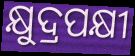
କ୍ଷୁଦ୍ରପକ୍ଷୀ